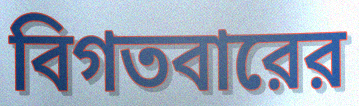
বিগতবারের